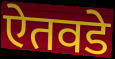
ऐतवडे